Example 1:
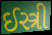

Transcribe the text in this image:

ઈસ્ત્રી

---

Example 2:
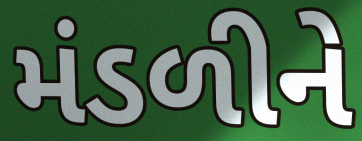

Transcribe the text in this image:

મંડળીને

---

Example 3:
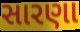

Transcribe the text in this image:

સારણા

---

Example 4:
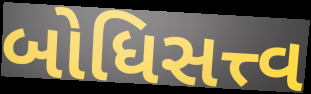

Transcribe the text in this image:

બોધિસત્ત્વ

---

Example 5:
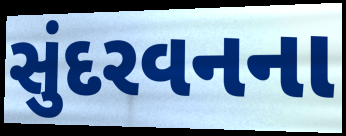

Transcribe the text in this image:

સુંદરવનના